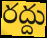
రద్దు